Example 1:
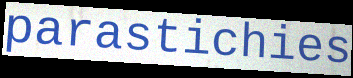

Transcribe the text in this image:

parastichies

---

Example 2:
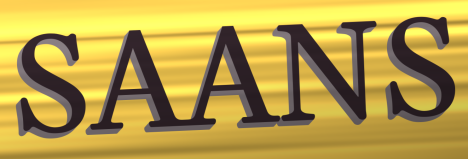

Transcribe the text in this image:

SAANS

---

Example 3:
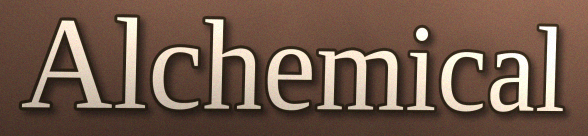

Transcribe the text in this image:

Alchemical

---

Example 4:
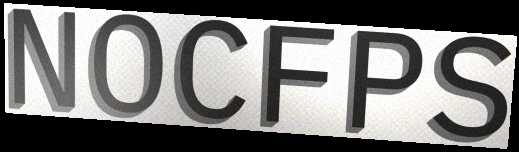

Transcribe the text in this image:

NOCFPS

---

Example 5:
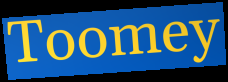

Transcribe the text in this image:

Toomey